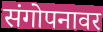
संगोपनावर